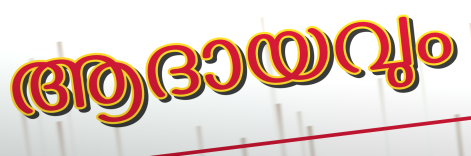
ആദായവും